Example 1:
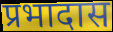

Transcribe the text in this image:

प्रभादास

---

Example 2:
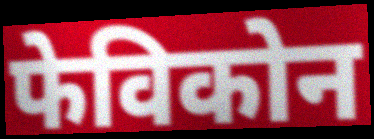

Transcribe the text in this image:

फेविकोन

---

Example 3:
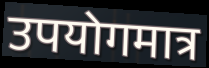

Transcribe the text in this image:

उपयोगमात्र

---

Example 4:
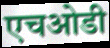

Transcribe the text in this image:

एचओडी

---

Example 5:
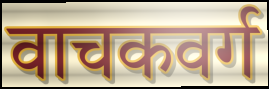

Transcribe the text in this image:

वाचकवर्ग